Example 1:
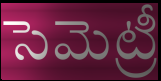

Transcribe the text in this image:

సెమెట్రీ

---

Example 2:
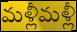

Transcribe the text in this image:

మళ్లీమళ్లీ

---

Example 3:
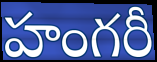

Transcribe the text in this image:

హంగరీ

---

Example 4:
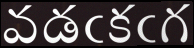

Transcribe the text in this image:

వడఁకఁగ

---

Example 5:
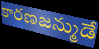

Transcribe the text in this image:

కారణజన్ముడే